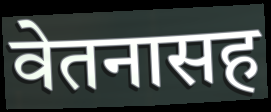
वेतनासह